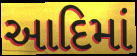
આદિમાં